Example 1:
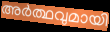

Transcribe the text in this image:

അർത്ഥവുമായി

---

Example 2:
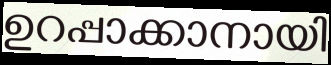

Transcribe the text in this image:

ഉറപ്പാക്കാനായി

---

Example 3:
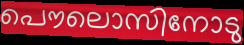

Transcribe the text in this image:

പൌലൊസിനോടു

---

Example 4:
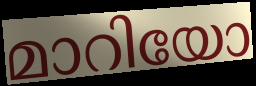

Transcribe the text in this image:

മാറിയോ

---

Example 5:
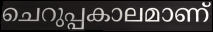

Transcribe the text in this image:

ചെറുപ്പകാലമാണ്